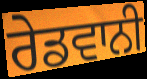
ਰੇਡਵਾਨੀ